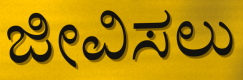
ಜೀವಿಸಲು